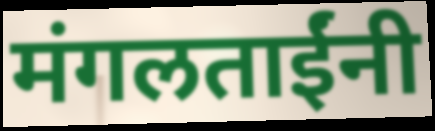
मंगलताईंनी